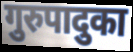
गुरुपादुका